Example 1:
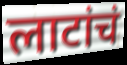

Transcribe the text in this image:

लाटांचं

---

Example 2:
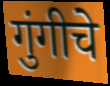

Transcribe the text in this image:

गुंगीचे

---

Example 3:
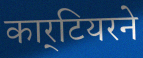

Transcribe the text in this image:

कार्टियरने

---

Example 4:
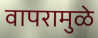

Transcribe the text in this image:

वापरामुळे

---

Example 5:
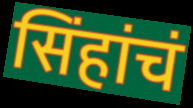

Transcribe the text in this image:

सिंहांचं